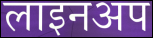
लाइनअप